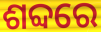
ଶବ୍ଦରେ